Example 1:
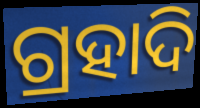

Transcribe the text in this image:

ଗ୍ରହାଦି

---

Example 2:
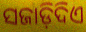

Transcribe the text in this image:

ସଜାଡ଼ିଦିଏ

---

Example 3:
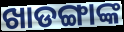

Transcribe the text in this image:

ଖାଡଙ୍ଗାଙ୍କ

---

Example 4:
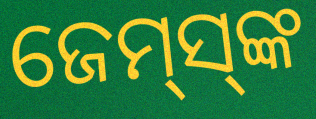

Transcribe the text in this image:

ଜେମ୍‌ସ୍‌ଙ୍କ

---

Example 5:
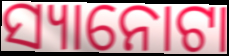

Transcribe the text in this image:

ସ୍ୟାନୋଟା